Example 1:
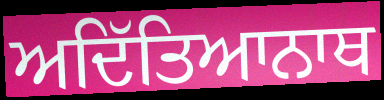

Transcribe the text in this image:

ਅਦਿੱਤਿਆਨਾਥ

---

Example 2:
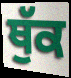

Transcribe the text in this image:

ਥੁੱਕ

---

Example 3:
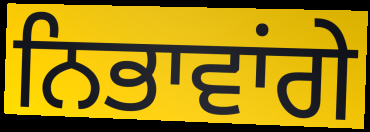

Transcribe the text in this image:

ਨਿਭਾਵਾਂਗੇ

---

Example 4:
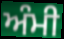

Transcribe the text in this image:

ਅੰਮੀ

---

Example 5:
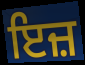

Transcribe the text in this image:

ਇਜ਼